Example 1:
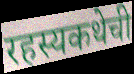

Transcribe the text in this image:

रहस्यकथेची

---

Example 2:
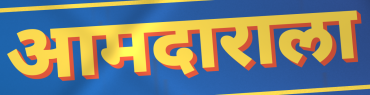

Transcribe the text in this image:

आमदाराला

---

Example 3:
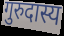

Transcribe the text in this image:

गुरुदास्य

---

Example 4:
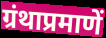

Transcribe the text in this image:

ग्रंथाप्रमाणें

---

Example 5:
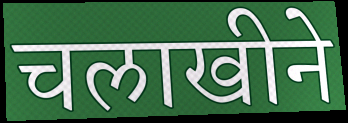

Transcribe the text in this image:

चलाखीने